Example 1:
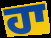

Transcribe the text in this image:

ਹਾ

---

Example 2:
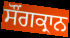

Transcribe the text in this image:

ਸੌਂਗਕ੍ਰਾਨ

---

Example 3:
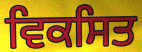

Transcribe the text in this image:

ਵਿਕਸਿਤ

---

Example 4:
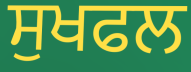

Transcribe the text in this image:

ਸੁਖਫਲ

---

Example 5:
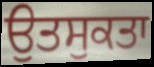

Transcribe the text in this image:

ਉਤਸੁਕਤਾ